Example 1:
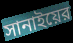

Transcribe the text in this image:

সানাইয়ের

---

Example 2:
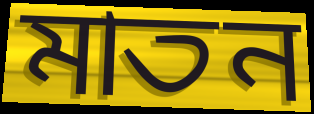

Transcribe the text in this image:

মাতন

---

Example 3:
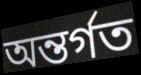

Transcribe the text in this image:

অন্তর্গত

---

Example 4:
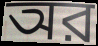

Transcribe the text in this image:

অর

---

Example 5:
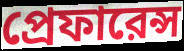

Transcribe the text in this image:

প্রেফারেন্স